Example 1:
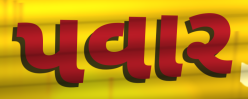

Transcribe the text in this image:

પવાર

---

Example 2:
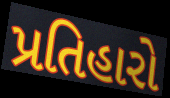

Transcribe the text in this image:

પ્રતિહારો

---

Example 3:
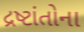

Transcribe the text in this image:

દ્રષ્ટાંતોના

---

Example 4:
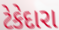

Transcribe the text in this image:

ટેકેદારા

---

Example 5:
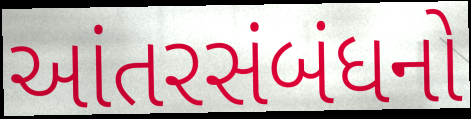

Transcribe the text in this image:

આંતરસંબંધનો